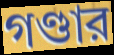
গণ্ডার